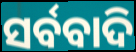
ସର୍ବବାଦି